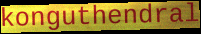
konguthendral